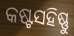
କଷ୍ଟସହିଷ୍ଣୁ